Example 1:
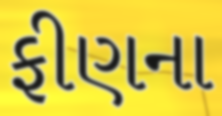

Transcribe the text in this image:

ફીણના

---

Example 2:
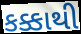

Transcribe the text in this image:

કક્કાથી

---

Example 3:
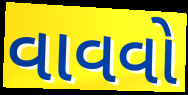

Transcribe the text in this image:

વાવવો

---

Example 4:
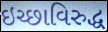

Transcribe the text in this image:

ઇચ્છાવિરુદ્ધ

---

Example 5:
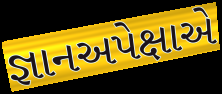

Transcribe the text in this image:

જ્ઞાનઅપેક્ષાએ